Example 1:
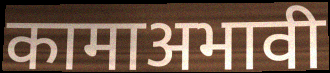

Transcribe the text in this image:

कामाअभावी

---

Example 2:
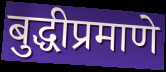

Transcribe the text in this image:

बुद्धीप्रमाणे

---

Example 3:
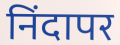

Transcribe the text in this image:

निंदापर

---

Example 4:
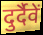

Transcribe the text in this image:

दुर्दैवें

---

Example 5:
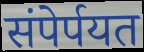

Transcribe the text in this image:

संपेर्पयत